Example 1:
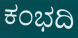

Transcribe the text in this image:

ಕಂಭದಿ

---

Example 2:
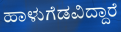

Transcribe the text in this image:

ಹಾಳುಗೆಡವಿದ್ದಾರೆ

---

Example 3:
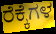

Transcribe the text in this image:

ರೆಕ್ಕೆಗಳ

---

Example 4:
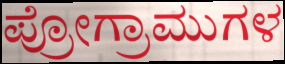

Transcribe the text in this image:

ಪ್ರೋಗ್ರಾಮುಗಳ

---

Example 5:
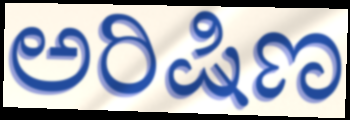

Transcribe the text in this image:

ಅರಿಷಿಣ